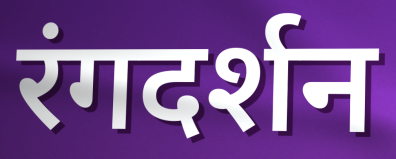
रंगदर्शन